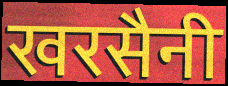
खरसैनी